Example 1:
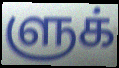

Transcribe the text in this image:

ளுக்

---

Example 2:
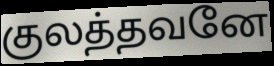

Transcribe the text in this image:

குலத்தவனே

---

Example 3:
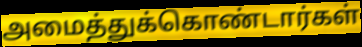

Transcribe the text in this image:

அமைத்துக்கொண்டார்கள்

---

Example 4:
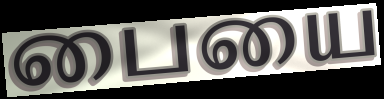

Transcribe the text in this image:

பையை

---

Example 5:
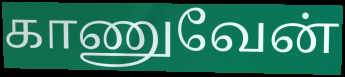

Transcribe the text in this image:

காணுவேன்